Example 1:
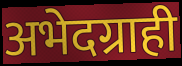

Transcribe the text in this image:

अभेदग्राही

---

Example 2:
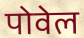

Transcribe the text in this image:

पोवेल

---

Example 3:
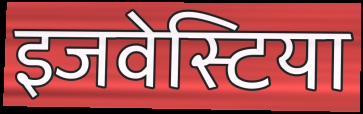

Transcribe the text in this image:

इजवेस्टिया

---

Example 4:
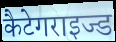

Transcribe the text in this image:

कैटेगराइज्ड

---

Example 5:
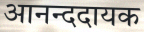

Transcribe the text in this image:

आनन्ददायक